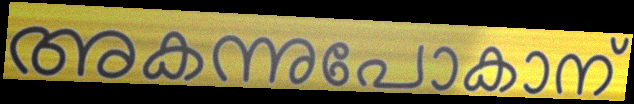
അകന്നുപോകാന്